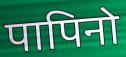
पापिनो